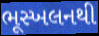
ભૂસ્ખલનથી